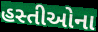
હસ્તીઓના